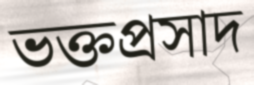
ভক্তপ্রসাদ